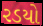
રડયો